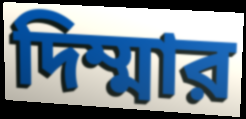
দিম্মার